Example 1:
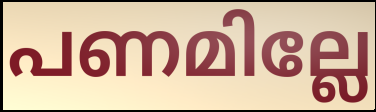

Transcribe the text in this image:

പണമില്ലേ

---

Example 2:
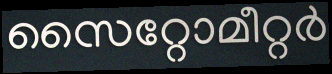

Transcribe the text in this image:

സൈറ്റോമീറ്റർ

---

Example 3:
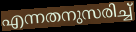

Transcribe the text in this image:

എന്നതനുസരിച്ച്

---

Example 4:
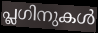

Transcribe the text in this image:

പ്ലഗിനുകൾ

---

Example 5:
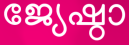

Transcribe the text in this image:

ജ്യേഷ്ഠാ